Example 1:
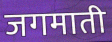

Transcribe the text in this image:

जगमाती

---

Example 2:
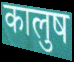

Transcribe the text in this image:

कालुष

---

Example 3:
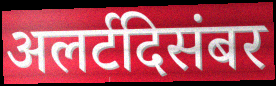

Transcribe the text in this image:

अलर्टदिसंबर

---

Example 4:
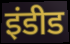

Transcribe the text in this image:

इंडीड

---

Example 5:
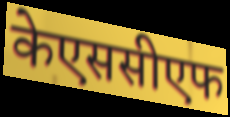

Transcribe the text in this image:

केएससीएफ